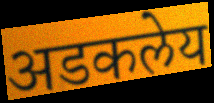
अडकलेय